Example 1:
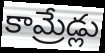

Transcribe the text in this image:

కామ్రేడ్లు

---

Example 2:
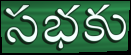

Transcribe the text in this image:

సభకు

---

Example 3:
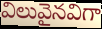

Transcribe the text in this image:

విలువైనవిగా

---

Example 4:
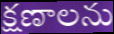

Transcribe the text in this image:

క్షణాలను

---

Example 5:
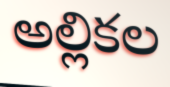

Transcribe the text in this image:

అల్లికల